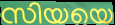
സിയയെ